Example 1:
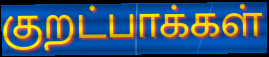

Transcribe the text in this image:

குறட்பாக்கள்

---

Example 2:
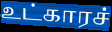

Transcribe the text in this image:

உட்காரச்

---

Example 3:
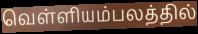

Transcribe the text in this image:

வெள்ளியம்பலத்தில்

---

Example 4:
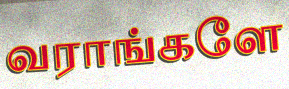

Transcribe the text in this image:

வராங்களே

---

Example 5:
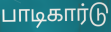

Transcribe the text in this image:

பாடிகார்டு